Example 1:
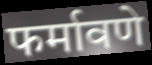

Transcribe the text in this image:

फर्मावणे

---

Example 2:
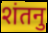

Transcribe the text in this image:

शंतनु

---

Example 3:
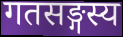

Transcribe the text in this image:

गतसङ्गस्य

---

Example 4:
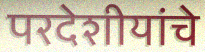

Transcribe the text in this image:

परदेशीयांचे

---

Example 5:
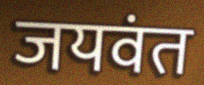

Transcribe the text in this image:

जयवंत